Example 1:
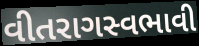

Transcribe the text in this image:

વીતરાગસ્વભાવી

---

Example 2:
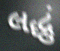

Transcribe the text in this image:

લદ્ધું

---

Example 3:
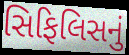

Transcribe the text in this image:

સિફિલિસનું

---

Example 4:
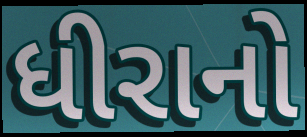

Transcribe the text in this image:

ધીરાનો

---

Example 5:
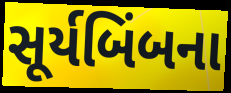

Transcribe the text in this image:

સૂર્યબિંબના